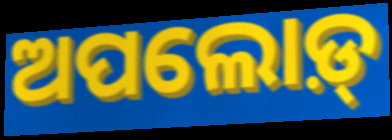
ଅପଲୋଡ଼୍